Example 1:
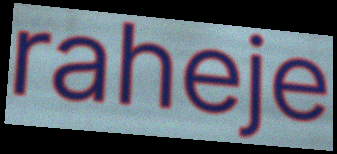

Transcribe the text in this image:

raheje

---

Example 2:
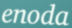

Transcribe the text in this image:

enoda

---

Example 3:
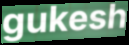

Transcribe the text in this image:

gukesh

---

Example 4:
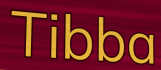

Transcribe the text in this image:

Tibba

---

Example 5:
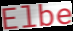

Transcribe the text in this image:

Elbe